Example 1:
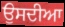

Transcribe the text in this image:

ਉਸਦੀਆ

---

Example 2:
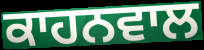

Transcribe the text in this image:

ਕਾਹਨਵਾਲ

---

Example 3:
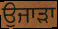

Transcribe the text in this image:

ਉਜਾੜਾ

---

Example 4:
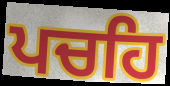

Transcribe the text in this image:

ਪਚਹਿ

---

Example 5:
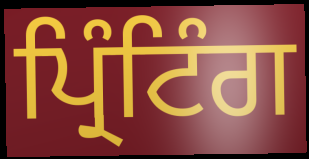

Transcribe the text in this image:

ਪ੍ਰਿੰਟਿੰਗ